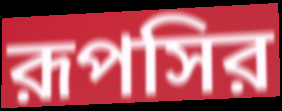
রূপসির